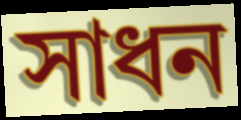
সাধন